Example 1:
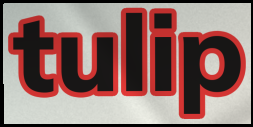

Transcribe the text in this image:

tulip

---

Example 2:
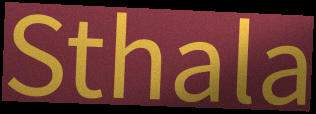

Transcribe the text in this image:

Sthala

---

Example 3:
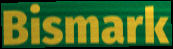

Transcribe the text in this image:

Bismark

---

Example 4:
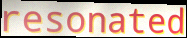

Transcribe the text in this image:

resonated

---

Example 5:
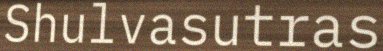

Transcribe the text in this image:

Shulvasutras